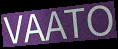
VAATO